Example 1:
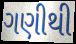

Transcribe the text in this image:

ગણીથી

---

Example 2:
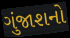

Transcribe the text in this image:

ગુંજાશનો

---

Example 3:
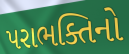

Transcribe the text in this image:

પરાભક્તિનો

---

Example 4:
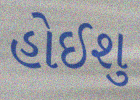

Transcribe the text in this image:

હોઈશુ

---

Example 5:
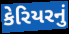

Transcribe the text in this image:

કેરિયરનું